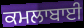
ਕਮਲਾਬਾਈ